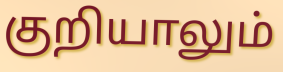
குறியாலும்